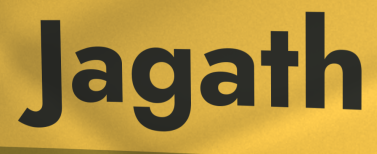
Jagath